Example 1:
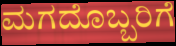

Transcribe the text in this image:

ಮಗದೊಬ್ಬರಿಗೆ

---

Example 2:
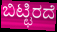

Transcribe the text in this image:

ಬಿಟ್ಟಿರದೆ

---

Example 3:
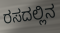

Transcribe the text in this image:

ರಸದಲ್ಲಿನ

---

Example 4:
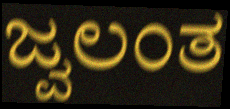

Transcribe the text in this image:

ಜ್ವಲಂತ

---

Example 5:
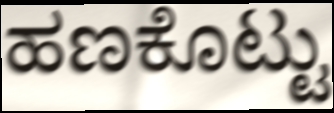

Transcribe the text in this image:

ಹಣಕೊಟ್ಟು